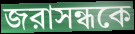
জরাসন্ধকে